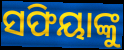
ସଫିୟାଙ୍କୁ